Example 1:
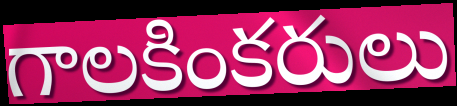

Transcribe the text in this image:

గాలకింకరులు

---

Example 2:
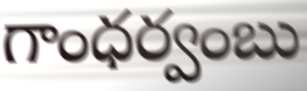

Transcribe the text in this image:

గాంధర్వంబు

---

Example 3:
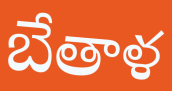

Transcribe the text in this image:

బేతాళ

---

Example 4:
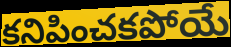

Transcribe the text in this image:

కనిపించకపోయే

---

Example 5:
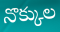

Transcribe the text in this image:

నొక్కుల